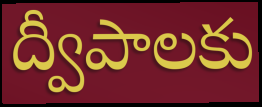
ద్వీపాలకు